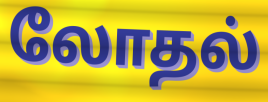
லோதல்